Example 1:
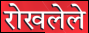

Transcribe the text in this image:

रोखलेले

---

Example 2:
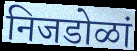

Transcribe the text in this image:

निजडोळां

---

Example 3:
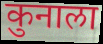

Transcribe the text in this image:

कुनाला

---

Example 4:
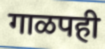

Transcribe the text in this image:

गाळपही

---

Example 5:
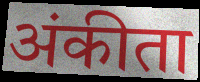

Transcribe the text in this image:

अंकीता